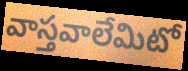
వాస్తవాలేమిటో